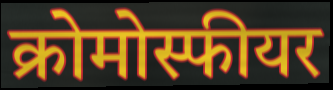
क्रोमोस्फीयर